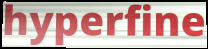
hyperfine